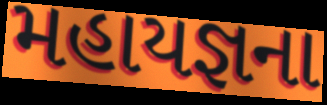
મહાયજ્ઞના